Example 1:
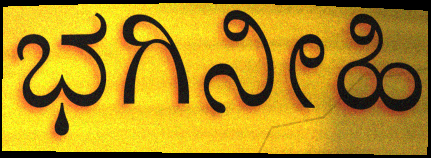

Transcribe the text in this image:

ಭಗಿನೀಹಿ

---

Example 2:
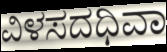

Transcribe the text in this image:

ವಿಳಸದಧಿವಾ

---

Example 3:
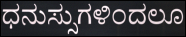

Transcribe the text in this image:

ಧನುಸ್ಸುಗಳಿಂದಲೂ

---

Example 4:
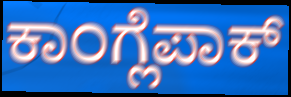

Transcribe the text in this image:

ಕಾಂಗ್ಲೆಪಾಕ್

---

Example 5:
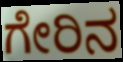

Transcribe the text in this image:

ಗೇರಿನ